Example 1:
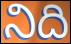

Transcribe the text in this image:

నిది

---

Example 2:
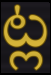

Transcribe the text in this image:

ట్ల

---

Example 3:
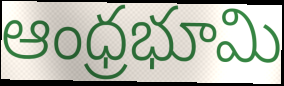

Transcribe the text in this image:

ఆంధ్రభూమి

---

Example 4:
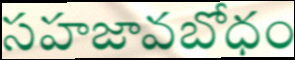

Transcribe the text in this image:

సహజావబోధం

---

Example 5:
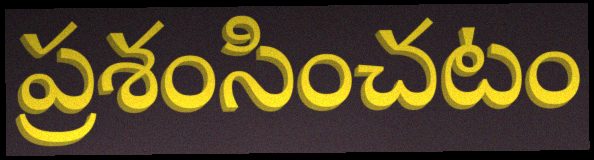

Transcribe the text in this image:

ప్రశంసించటం